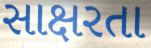
સાક્ષરતા